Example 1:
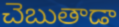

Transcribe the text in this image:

చెబుతాడా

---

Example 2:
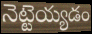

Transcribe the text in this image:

నెట్టెయ్యడం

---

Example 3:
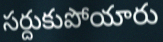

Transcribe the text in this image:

సర్దుకుపోయారు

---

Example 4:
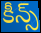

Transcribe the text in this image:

కీన్స్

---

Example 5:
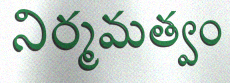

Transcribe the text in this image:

నిర్మమత్వం